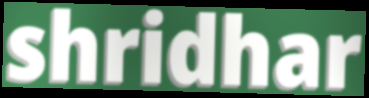
shridhar